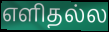
எளிதல்ல